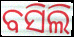
ବସିଲି